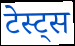
टेस्ट्स